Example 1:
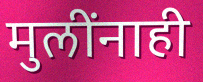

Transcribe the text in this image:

मुलींनाही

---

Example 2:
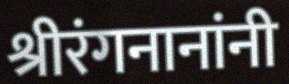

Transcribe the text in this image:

श्रीरंगनानांनी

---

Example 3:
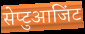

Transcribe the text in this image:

सेप्टुआजिंट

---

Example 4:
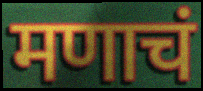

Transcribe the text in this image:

मणाचं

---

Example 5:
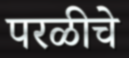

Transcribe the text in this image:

परळीचे